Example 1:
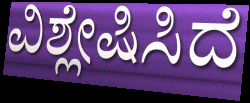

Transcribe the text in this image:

ವಿಶ್ಲೇಷಿಸಿದೆ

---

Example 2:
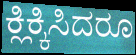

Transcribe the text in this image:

ಕ್ಲಿಕ್ಕಿಸಿದರೂ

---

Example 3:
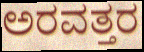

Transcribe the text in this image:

ಅರವತ್ತರ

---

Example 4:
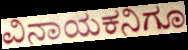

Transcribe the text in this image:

ವಿನಾಯಕನಿಗೂ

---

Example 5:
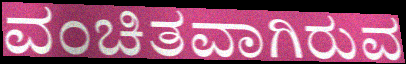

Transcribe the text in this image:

ವಂಚಿತವಾಗಿರುವ